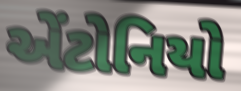
એંટોનિયો